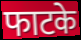
फाटके